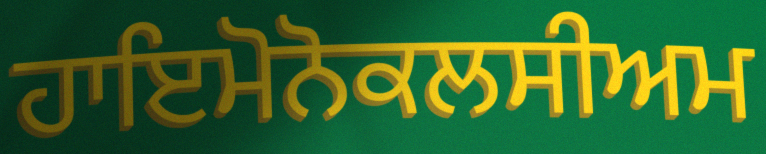
ਹਾਇਮੋਨੋਕਲਸੀਅਮ